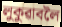
লুকুৱাবলৈ